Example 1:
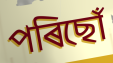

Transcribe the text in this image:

পৰিছোঁ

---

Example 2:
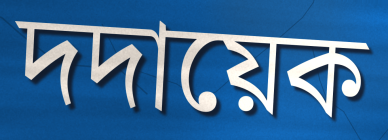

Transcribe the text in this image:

দদায়েক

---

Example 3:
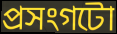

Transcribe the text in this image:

প্ৰসংগটো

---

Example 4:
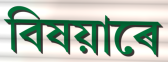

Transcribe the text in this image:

বিষয়াৰে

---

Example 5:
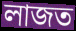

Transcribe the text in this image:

লাজত